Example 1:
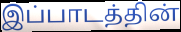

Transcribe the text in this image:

இப்பாடத்தின்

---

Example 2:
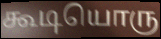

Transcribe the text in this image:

கூடியொரு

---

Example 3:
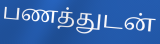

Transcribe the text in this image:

பணத்துடன்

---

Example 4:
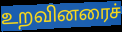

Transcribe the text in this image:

உறவினரைச்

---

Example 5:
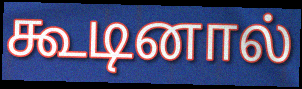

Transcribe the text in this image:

கூடினால்